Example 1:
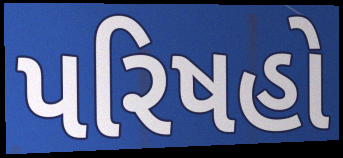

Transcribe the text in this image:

પરિષહો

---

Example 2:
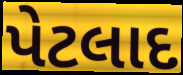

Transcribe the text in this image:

પેટલાદ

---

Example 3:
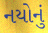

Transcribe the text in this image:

નયોનું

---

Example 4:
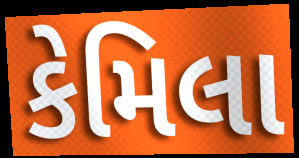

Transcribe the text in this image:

કેમિલા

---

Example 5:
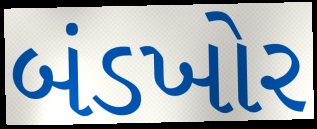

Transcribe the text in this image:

બંડખોર